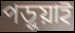
পড়ুয়াই